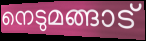
നെടുമങ്ങാട്